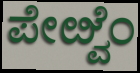
ಪೇೞ್ವೆಂ